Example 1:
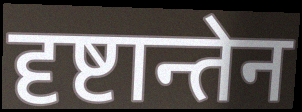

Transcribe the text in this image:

दृष्टान्तेन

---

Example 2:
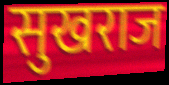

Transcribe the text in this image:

सुखराज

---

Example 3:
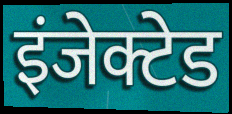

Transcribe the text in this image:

इंजेक्टेड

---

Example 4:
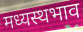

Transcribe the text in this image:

मध्यस्थभाव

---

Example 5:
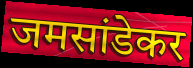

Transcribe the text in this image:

जमसांडेकर